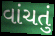
વાંચતું